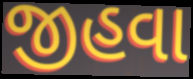
જીહવા